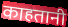
काहतानी